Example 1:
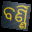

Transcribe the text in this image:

ବର୍ଣ୍ଣି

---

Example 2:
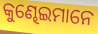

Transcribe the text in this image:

କୁଣ୍ଢେଇମାନେ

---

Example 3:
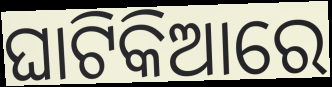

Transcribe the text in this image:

ଘାଟିକିଆରେ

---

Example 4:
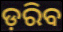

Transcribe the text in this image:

ଡ଼ରିବ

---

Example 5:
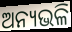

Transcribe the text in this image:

ଅନ୍ୟଭଳି